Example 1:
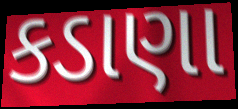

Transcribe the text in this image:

કડાણા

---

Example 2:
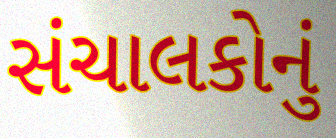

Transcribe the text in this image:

સંચાલકોનું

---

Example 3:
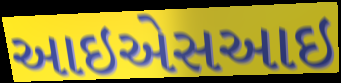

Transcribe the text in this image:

આઇએસઆઇ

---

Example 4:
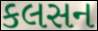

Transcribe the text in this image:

કલસન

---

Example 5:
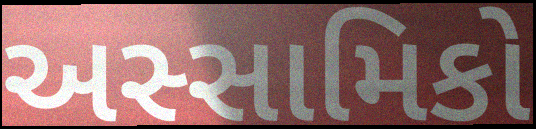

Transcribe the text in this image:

અસ્સામિકો